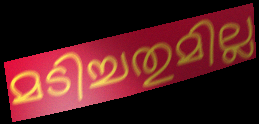
മടിച്ചതുമില്ല